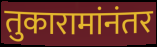
तुकारामांनंतर